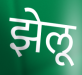
झेलू